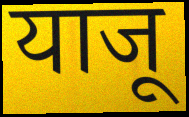
याजू